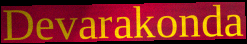
Devarakonda